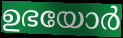
ഉഭയോർ